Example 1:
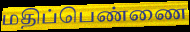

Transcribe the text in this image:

மதிப்பெண்ணை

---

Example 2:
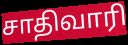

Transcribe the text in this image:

சாதிவாரி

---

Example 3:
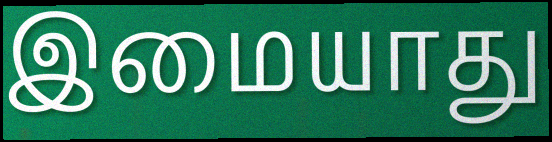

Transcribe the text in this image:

இமையாது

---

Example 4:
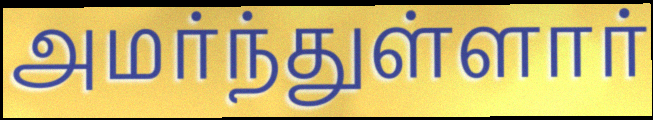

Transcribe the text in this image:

அமர்ந்துள்ளார்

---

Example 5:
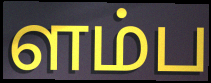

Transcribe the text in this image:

ளம்ப